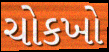
ચોકખો